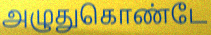
அழுதுகொண்டே